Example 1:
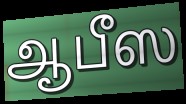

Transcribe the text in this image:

ஆபீஸ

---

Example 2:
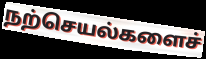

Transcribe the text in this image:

நற்செயல்களைச்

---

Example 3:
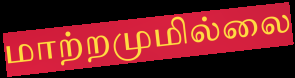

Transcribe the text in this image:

மாற்றமுமில்லை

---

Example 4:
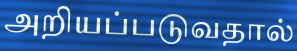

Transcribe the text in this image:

அறியப்படுவதால்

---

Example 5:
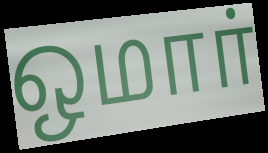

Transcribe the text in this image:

ஒமார்